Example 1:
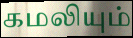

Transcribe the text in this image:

கமலியும்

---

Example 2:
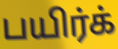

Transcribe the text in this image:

பயிர்க்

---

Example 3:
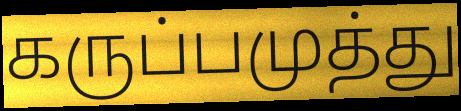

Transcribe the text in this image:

கருப்பமுத்து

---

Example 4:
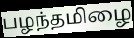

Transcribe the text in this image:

பழந்தமிழை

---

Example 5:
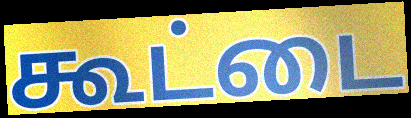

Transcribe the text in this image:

கூட்டை